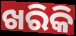
ଖରିକି